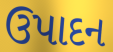
ઉપાદન